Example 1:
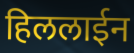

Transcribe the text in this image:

हिललाईन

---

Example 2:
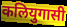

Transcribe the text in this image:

कलियुगासी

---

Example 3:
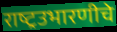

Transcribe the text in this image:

राष्ट्रउभारणीचे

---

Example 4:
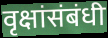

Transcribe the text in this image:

वृक्षांसंबंधी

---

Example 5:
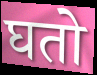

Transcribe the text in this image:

घतो